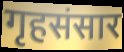
गृहसंसार